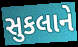
સુકલાને